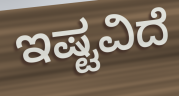
ಇಷ್ಟವಿದೆ